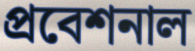
প্রবেশনাল